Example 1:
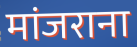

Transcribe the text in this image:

मांजराना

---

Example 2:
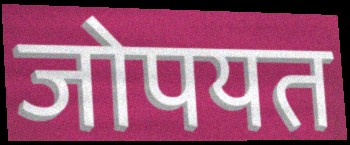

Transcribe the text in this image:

जोपयत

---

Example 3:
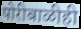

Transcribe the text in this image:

पोरीबाळीही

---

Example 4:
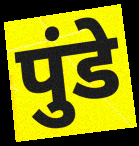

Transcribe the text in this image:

पुंडे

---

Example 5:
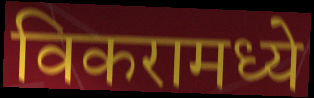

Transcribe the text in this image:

विकरामध्ये